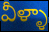
వీళ్ళా